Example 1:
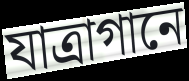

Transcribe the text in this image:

যাত্রাগানে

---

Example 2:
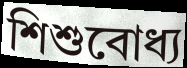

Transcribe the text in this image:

শিশুবোধ্য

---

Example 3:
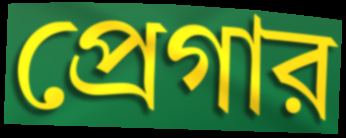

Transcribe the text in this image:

প্রেগার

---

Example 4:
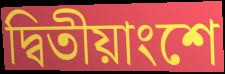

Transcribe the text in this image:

দ্বিতীয়াংশে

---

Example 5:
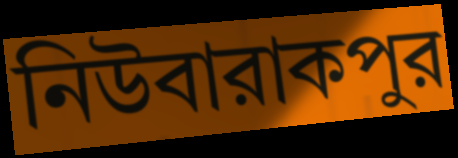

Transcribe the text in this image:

নিউবারাকপুর